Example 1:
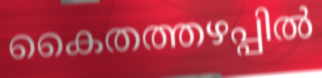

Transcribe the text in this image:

കൈതത്തഴപ്പിൽ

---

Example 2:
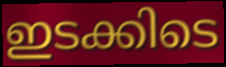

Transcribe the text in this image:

ഇടക്കിടെ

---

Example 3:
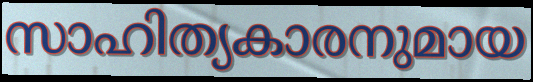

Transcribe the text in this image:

സാഹിത്യകാരനുമായ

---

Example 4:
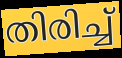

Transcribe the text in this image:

തിരിച്ച്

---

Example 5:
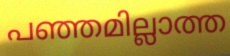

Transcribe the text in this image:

പഞ്ഞമില്ലാത്ത